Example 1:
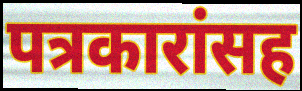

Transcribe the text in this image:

पत्रकारांसह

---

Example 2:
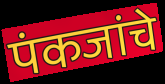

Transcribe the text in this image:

पंकजांचे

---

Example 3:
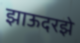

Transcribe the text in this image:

झाऊदरझे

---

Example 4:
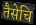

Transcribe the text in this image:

तैसेचि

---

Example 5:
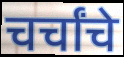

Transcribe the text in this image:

चर्चांचे